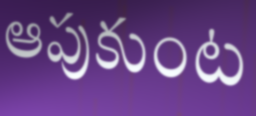
ఆపుకుంట